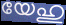
യേഹു